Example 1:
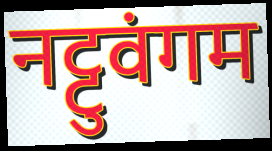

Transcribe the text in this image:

नट्टुवंगम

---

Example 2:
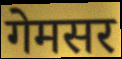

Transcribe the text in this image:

गेमसर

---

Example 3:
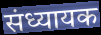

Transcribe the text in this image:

संध्यायक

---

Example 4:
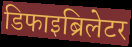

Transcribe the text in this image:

डिफाइब्रिलेटर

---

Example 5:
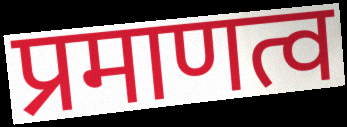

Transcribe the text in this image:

प्रमाणत्व